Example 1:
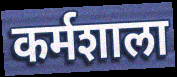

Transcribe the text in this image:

कर्मशाला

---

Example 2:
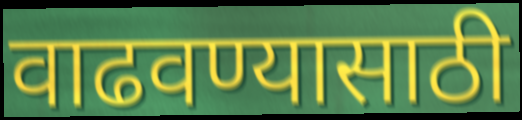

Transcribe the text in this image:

वाढवण्यासाठी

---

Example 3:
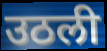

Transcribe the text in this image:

उठली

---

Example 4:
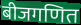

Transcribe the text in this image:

बीजगणित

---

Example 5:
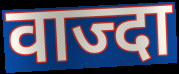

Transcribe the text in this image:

वाज्दा